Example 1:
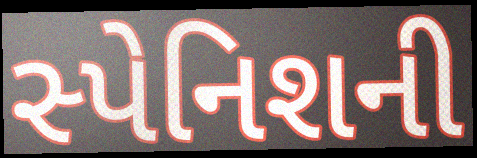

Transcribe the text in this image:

સ્પેનિશની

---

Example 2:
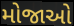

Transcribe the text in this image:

મોજાઓ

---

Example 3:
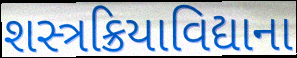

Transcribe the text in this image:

શસ્ત્રક્રિયાવિદ્યાના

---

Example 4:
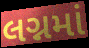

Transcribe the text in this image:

લગ્નમાં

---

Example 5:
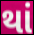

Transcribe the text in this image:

થાં